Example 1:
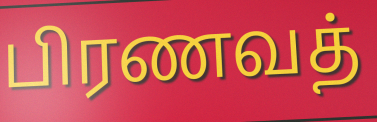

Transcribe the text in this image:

பிரணவத்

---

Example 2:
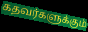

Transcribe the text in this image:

கதவர்களுக்கும்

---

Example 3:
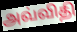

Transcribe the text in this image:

அவ்விதி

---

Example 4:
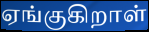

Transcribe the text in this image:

ஏங்குகிறாள்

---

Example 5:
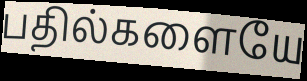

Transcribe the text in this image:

பதில்களையே